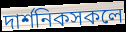
দাৰ্শনিকসকলে